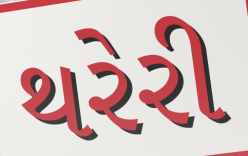
થરેરી